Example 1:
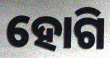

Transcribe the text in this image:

ହୋଗି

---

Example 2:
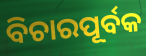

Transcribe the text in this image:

ବିଚାରପୂର୍ବକ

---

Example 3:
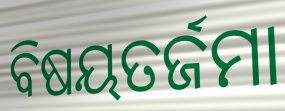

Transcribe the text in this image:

ବିଷୟତର୍ଜମା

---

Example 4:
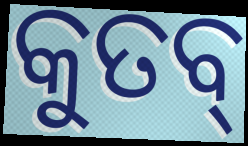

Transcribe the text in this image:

କୁତବ୍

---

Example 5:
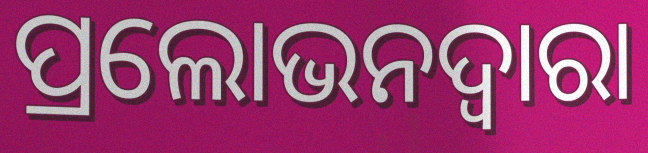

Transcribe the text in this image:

ପ୍ରଲୋଭନଦ୍ୱାରା